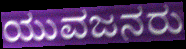
ಯುವಜನರು